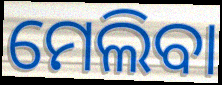
ମେଲିବା